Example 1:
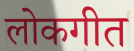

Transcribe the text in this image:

लोकगीत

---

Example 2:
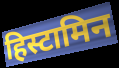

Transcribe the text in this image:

हिस्टामिन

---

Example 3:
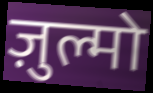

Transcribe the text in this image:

ज़ुल्मो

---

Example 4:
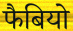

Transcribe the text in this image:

फैबियो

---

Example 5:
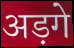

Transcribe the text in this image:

अड़गे